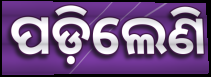
ପଡ଼ିଲେଣି